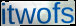
itwofs